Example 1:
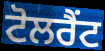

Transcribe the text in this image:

ਟੋਲਰੈਂਟ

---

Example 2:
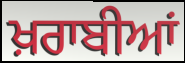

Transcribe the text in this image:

ਖ਼ਰਾਬੀਆਂ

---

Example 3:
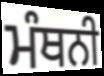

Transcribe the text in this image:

ਮੰਥਨੀ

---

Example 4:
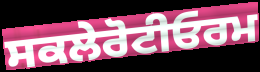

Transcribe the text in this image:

ਸਕਲੇਰੋਟੀਓਰਮ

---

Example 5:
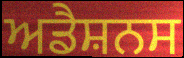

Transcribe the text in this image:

ਅਡੈਸ਼ਨਸ